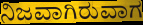
ನಿಜವಾಗಿರುವಾಗ